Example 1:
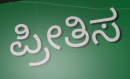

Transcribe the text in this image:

ಪ್ರೀತಿಸ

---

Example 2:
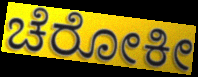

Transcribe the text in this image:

ಚೆರೋಕೀ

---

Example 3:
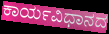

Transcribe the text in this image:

ಕಾರ್ಯವಿಧಾನದ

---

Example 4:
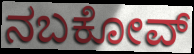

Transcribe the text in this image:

ನಬಕೋವ್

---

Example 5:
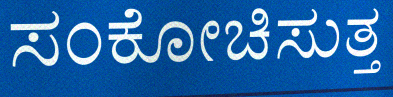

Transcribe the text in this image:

ಸಂಕೋಚಿಸುತ್ತ